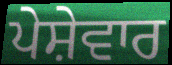
ਪੇਸ਼ੇਵਾਰ